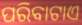
ପରିବାଟାଏ